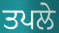
ਤਪਲੇ